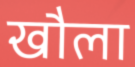
खौला